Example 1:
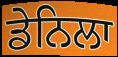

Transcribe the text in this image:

ਡੇਨਿਲਾ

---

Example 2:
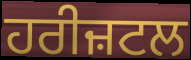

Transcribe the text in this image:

ਹਰੀਜ਼ਟਲ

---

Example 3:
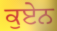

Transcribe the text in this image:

ਕੁਏਨ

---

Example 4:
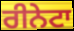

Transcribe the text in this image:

ਰੀਨੇਟਾ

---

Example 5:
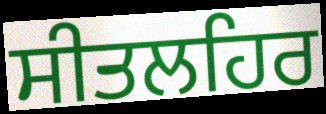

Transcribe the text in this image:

ਸੀਤਲਹਿਰ